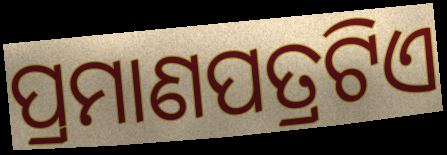
ପ୍ରମାଣପତ୍ରଟିଏ